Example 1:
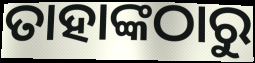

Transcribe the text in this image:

ତାହାଙ୍କଠାରୁ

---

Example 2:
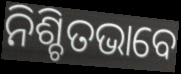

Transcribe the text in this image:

ନିଶ୍ଚିତଭାବେ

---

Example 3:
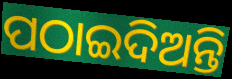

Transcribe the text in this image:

ପଠାଇଦିଅନ୍ତି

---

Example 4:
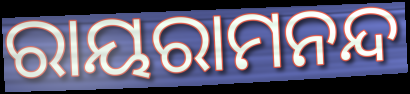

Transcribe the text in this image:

ରାୟରାମନନ୍ଦ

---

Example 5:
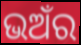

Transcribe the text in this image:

ଭଅଁର